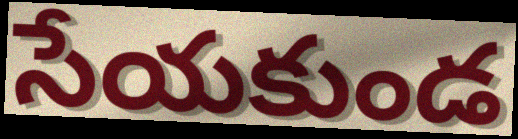
సేయకుండ